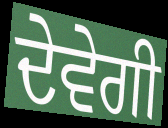
ਦੇਵੇਗੀ